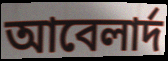
আবেলার্দ